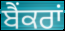
ਬੈਂਕਰਾਂ